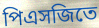
পিএসজিতে